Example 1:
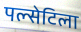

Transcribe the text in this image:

पल्सेटिला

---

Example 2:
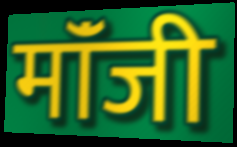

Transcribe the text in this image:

मॉंजी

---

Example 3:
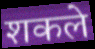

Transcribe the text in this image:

शकले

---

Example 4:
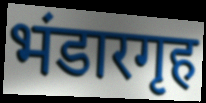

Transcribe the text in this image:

भंडारगृह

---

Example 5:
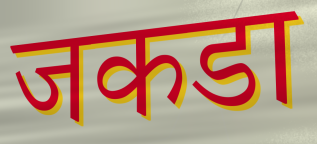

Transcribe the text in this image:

जकडा